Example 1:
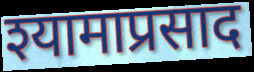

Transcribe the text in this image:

श्यामाप्रसाद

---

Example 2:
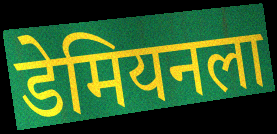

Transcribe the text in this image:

डेमियनला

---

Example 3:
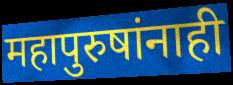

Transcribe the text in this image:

महापुरुषांनाही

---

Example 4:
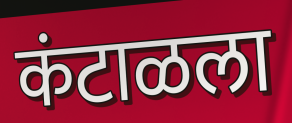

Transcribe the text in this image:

कंटाळला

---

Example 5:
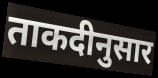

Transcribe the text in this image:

ताकदीनुसार